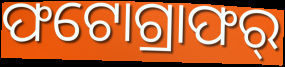
ଫଟୋଗ୍ରାଫର୍